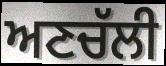
ਅਣਚੱਲੀ